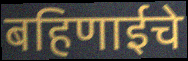
बहिणाईचे